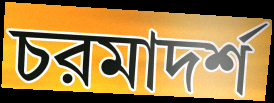
চরমাদর্শ